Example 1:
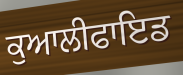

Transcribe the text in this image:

ਕੁਆਲੀਫਾਇਡ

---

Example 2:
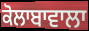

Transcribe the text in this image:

ਕੋਲਾਬਾਵਾਲਾ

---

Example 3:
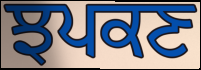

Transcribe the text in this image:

ਝਪਕਣ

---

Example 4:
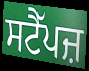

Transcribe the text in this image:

ਸਟੈੱਪਜ਼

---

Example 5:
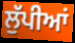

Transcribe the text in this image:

ਲੁੱਪੀਆਂ